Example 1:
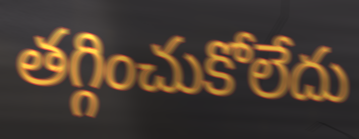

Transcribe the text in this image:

తగ్గించుకోలేదు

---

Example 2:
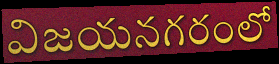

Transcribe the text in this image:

విజయనగరంలో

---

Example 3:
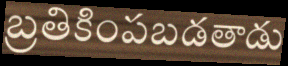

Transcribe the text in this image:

బ్రతికింపబడతాడు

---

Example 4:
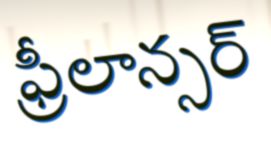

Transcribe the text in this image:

ఫ్రీలాన్సర్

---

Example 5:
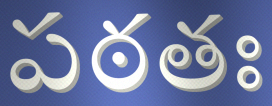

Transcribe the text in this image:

పఠతః